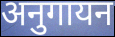
अनुगायन